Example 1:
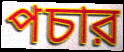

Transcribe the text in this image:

পচার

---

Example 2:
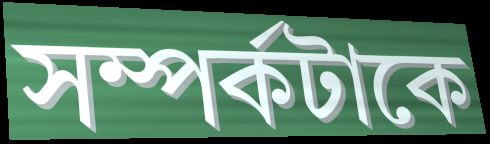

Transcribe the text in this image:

সম্পর্কটাকে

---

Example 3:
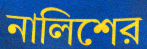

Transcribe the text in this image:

নালিশের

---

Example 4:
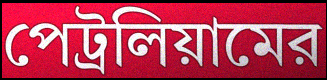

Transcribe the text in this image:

পেট্রলিয়ামের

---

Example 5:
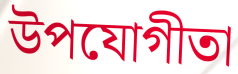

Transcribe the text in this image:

উপযোগীতা